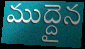
ముద్దైన